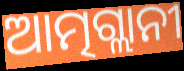
ଆତ୍ମଗ୍ଲାନୀ